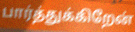
பார்த்துக்கிறேன்